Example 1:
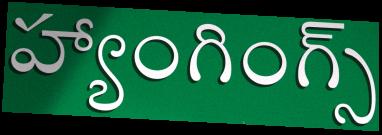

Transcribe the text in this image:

హ్యాంగింగ్స్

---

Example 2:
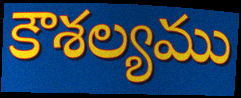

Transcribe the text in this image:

కౌశల్యము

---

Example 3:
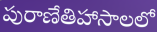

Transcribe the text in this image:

పురాణేతిహాసాలలో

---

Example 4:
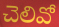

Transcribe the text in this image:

చెలివో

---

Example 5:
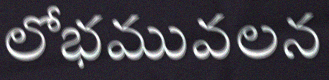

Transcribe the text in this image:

లోభమువలన